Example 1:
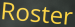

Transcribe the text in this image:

Roster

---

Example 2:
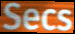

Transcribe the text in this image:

Secs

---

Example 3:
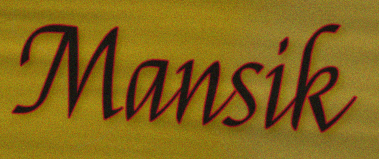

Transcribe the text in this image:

Mansik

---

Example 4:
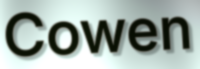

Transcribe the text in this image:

Cowen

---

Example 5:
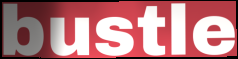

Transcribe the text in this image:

bustle